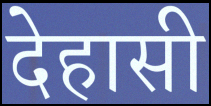
देहासी